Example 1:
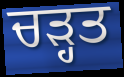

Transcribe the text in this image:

ਚੜ੍ਹਤ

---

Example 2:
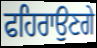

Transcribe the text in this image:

ਫਹਿਰਾਉਣਗੇ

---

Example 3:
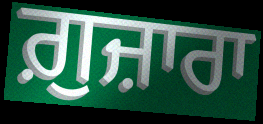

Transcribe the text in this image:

ਗ਼ੁਜ਼ਾਰਾ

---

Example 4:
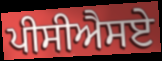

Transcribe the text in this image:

ਪੀਸੀਐਸਏ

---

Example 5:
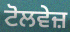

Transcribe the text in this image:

ਟੋਲਵੇਜ਼